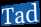
Tad